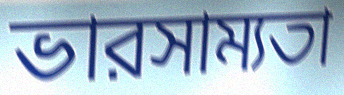
ভারসাম্যতা